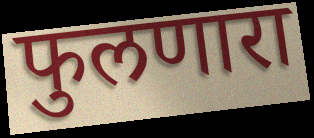
फुलणारा